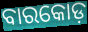
ବାରକୋଡ଼